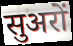
सुअरों